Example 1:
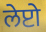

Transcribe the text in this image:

लेप्टो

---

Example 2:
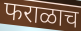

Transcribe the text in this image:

फराळाच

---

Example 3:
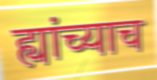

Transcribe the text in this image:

ह्यांच्याच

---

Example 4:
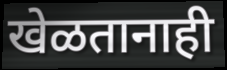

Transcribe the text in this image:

खेळतानाही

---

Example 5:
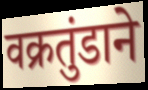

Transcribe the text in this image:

वक्रतुंडाने